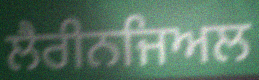
ਲੈਰੀਨਜਿਅਲ